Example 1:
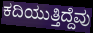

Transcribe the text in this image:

ಕದಿಯುತ್ತಿದ್ದೆವು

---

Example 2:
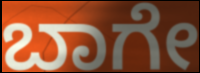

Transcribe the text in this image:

ಬಾಗೇ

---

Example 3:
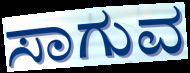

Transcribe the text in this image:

ಸಾಗುವ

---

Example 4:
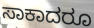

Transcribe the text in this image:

ಸಾಕಾದರೂ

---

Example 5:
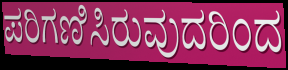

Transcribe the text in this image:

ಪರಿಗಣಿಸಿರುವುದರಿಂದ